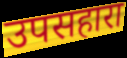
उपसहारा